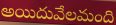
అయిదువేలమంది